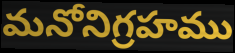
మనోనిగ్రహము